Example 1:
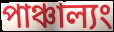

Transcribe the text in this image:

পাঞ্চাল্যং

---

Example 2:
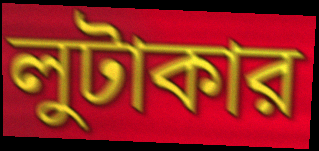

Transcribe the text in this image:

লুটাকার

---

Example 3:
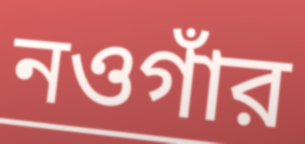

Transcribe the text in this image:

নওগাঁর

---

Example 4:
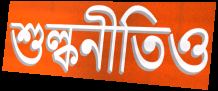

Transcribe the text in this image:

শুল্কনীতিও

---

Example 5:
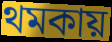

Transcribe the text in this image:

থমকায়